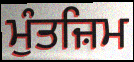
ਮੁੰਤਜ਼ਿਮ